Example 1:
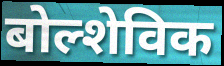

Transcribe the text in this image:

बोल्शेविक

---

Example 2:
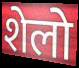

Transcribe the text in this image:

शेलो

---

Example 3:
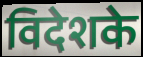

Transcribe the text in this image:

विदेशके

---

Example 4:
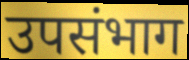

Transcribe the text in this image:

उपसंभाग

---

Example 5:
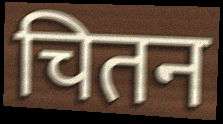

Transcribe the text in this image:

चितन